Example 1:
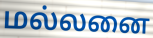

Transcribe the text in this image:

மல்லனை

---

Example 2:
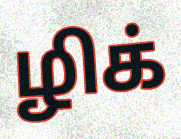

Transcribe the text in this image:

ழிக்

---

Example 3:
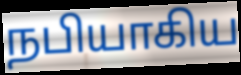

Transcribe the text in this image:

நபியாகிய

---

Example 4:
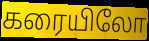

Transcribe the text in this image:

கரையிலோ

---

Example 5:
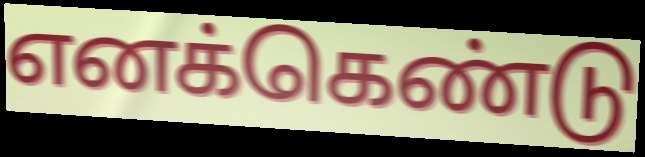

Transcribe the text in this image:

எனக்கெண்டு